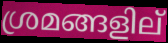
ശ്രമങ്ങളില്